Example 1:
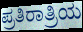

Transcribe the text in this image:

ಪ್ರತಿರಾತ್ರಿಯ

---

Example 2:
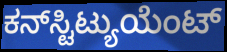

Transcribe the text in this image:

ಕನ್‌ಸ್ಟಿಟ್ಯುಯೆಂಟ್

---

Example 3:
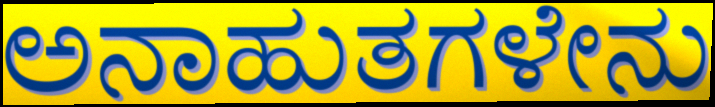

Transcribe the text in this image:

ಅನಾಹುತಗಳೇನು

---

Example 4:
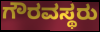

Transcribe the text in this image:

ಗೌರವಸ್ಥರು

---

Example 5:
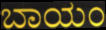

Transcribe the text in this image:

ಬಾಯಂ